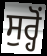
ਸੁਰ੍ਹੋਂ